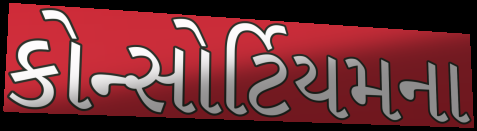
કોન્સોર્ટિયમના